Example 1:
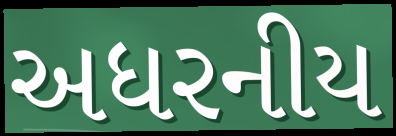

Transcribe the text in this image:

અધરનીય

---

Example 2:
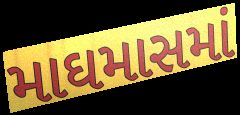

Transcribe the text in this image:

માઘમાસમાં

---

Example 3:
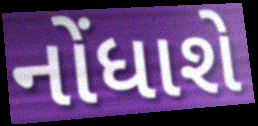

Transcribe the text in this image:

નોંધાશે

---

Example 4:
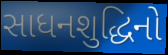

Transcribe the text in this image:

સાધનશુદ્ધિનો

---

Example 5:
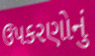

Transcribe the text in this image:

ઉપકરણોનું